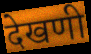
देखणी